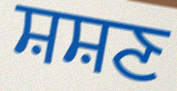
ਸ਼ਸ਼ਣ